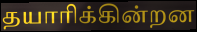
தயாரிக்கின்றன